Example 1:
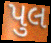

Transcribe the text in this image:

પુલ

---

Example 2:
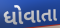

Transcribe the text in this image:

ધોવાતા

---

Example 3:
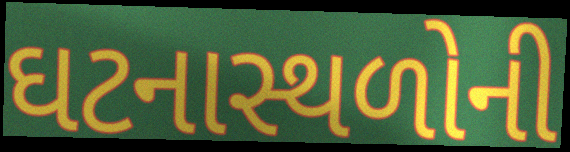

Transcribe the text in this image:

ઘટનાસ્થળોની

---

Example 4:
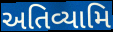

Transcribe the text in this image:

અતિવ્યામિ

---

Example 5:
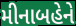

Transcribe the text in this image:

મીનાબહેને